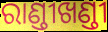
ରାଣ୍ଡୀଖଣ୍ଡୀ